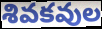
శివకవుల